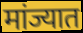
मांज्यात